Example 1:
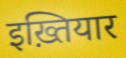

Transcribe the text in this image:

इख़्तियार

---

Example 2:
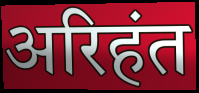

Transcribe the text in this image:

अरिहंत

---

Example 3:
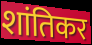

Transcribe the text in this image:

शांतिकर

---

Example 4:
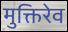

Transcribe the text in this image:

मुक्तिरेव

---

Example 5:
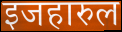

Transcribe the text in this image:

इजहारुल